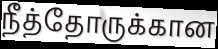
நீத்தோருக்கான